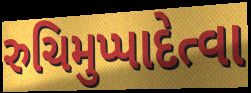
રુચિમુપ્પાદેત્વા